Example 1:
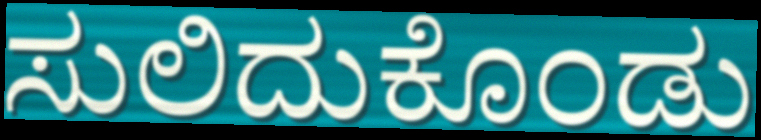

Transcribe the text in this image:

ಸುಲಿದುಕೊಂಡು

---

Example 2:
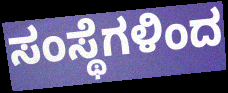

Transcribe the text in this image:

ಸಂಸ್ಥೆಗಳಿಂದ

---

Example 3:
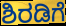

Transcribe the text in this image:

ಶಿರಡಿಗೆ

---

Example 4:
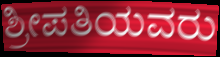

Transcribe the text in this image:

ಶ್ರೀಪತಿಯವರು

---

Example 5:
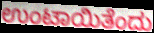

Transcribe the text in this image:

ಉಂಟಾಯಿತೆಂದು